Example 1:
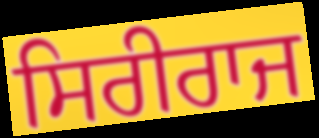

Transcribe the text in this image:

ਸਿਰੀਰਾਜ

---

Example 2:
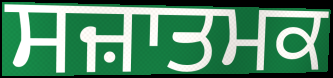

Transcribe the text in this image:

ਸਜ਼ਾਤਮਕ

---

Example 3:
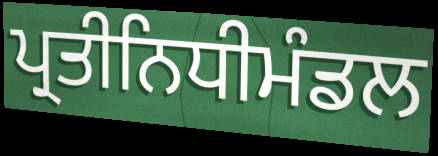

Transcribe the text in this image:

ਪ੍ਰਤੀਨਿਧੀਮੰਡਲ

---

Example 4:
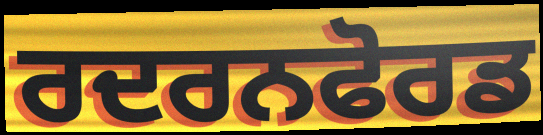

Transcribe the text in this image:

ਰਦਰਨਫੋਰਡ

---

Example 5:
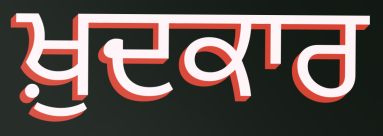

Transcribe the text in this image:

ਖ਼ੁਦਕਾਰ